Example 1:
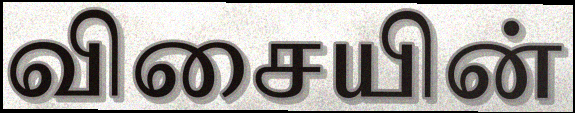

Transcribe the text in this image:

விசையின்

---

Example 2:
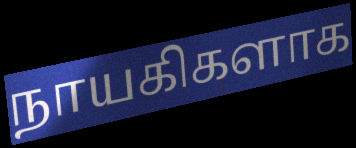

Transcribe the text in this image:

நாயகிகளாக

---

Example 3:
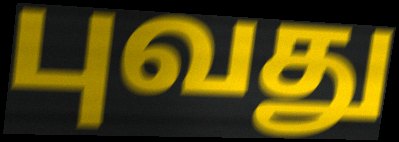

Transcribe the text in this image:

புவது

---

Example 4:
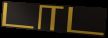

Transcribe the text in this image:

டாட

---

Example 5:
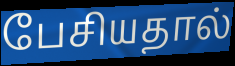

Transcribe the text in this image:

பேசியதால்